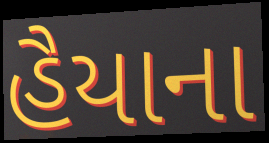
હૈયાના